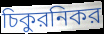
চিকুরনিকর